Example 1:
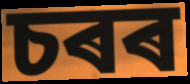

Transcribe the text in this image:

চৰৰ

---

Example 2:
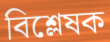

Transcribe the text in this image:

বিশ্লেষক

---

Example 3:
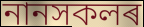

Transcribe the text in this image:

নানসকলৰ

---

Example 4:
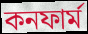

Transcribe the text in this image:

কনফাৰ্ম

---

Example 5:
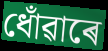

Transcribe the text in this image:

ধোঁৱাৰে